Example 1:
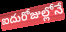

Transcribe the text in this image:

ఐదురోజుల్లోనే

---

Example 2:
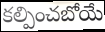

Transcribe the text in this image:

కల్పించబోయే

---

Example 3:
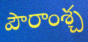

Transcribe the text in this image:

పౌరాంశ్చ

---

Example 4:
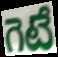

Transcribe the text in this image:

గెటే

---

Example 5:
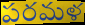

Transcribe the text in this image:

పరమళ